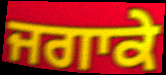
ਜਗਾਕੇ